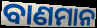
ବାଣମାନ